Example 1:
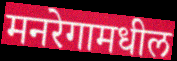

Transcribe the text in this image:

मनरेगामधील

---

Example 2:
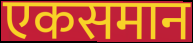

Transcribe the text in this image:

एकसमान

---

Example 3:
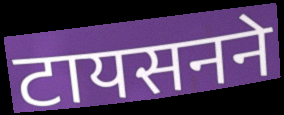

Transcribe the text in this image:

टायसनने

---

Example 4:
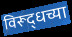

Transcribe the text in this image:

विरूद्धच्या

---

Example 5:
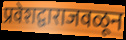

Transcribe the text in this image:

प्रवेशद्वाराजवळून